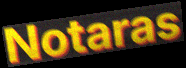
Notaras